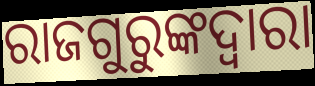
ରାଜଗୁରୁଙ୍କଦ୍ୱାରା